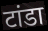
टांडा